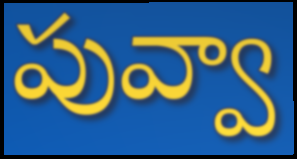
పువ్వా